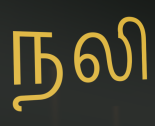
நலி